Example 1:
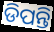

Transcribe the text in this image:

ଡିପନ୍ତି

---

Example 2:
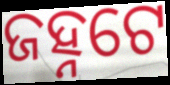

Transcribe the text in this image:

ଜହ୍ନଟେ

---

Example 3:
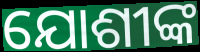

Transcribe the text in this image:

ଯୋଶୀଙ୍କ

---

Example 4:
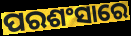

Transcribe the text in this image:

ପରଶଂସାରେ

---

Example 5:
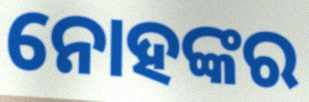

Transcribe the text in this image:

ନୋହଙ୍କର